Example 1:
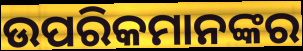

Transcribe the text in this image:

ଉପରିକମାନଙ୍କର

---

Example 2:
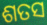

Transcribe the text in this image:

ଶତସ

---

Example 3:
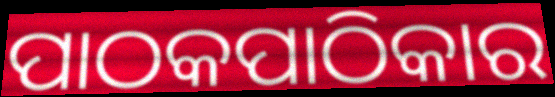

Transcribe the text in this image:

ପାଠକପାଠିକାର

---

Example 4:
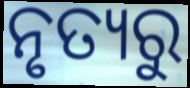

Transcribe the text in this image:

ନୃତ୍ୟରୁ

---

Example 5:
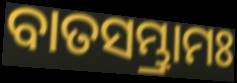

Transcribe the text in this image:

ବାତସମ୍ଭ୍ରାମଃ